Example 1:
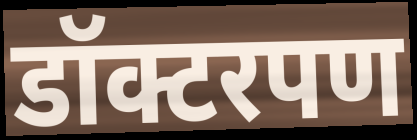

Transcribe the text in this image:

डॉक्टरपण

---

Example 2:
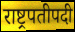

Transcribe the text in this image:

राष्ट्रपतीपदी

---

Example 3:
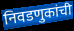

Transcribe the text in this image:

निवडणुकांची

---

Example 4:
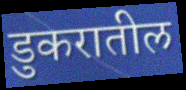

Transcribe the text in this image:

डुकरातील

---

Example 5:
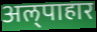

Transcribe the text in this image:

अल्पाहार